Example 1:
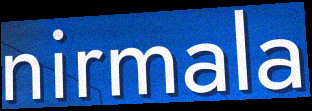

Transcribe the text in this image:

nirmala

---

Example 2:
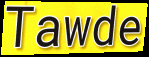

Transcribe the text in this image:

Tawde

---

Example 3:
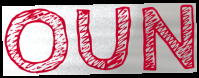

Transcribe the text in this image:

OUN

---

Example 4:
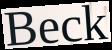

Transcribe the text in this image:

Beck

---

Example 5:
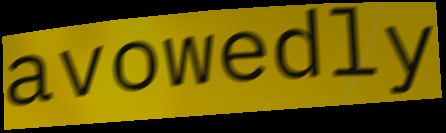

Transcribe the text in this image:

avowedly